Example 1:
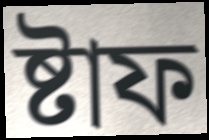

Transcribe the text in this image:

ষ্টাফ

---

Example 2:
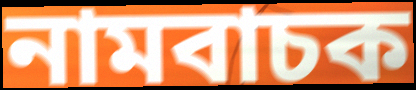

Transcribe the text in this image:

নামবাচক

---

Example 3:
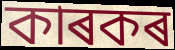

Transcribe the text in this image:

কাৰকৰ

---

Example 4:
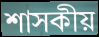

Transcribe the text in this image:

শাসকীয়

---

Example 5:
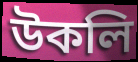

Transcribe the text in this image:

উকলি